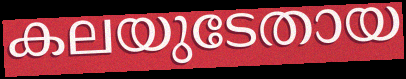
കലയുടേതായ